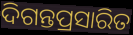
ଦିଗନ୍ତପ୍ରସାରିତ